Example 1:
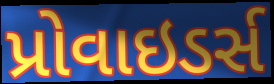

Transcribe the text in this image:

પ્રોવાઇડર્સ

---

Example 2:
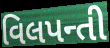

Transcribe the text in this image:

વિલપન્તી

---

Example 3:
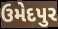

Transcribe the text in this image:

ઉમેદપુર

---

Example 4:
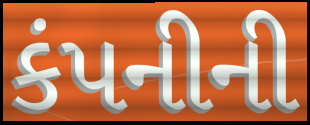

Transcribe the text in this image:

કંપનીની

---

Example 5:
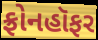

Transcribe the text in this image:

ફ્રોનહૉફર